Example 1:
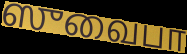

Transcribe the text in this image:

ஸுவைபா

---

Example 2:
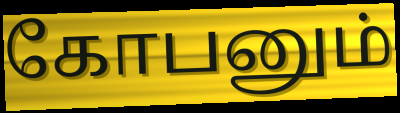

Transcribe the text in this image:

கோபனும்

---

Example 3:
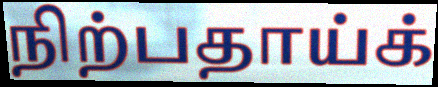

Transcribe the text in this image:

நிற்பதாய்க்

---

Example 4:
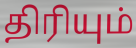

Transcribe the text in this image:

திரியும்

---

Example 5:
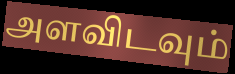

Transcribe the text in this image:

அளவிடவும்